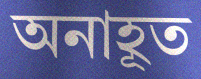
অনাহূত